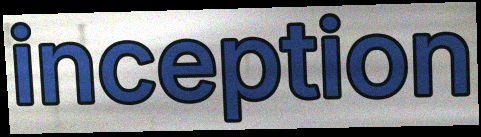
inception